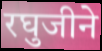
रघुजीने